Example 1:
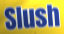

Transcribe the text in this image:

Slush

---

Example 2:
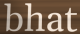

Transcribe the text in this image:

bhat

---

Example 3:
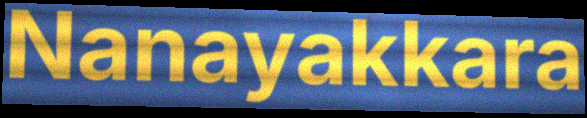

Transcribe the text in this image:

Nanayakkara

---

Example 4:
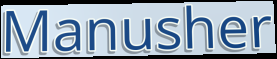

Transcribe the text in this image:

Manusher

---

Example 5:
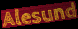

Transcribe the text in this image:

Alesund